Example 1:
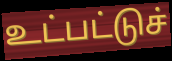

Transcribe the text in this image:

உட்பட்டுச்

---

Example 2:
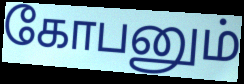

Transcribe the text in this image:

கோபனும்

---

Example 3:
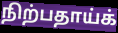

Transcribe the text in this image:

நிற்பதாய்க்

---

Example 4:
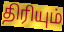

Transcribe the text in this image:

திரியும்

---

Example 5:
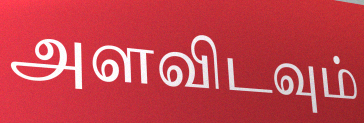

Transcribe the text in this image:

அளவிடவும்